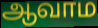
ஆவாம